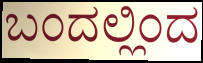
ಬಂದಲ್ಲಿಂದ